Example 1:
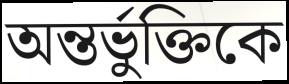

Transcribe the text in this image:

অন্তর্ভুক্তিকে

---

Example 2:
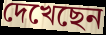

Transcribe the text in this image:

দেখেছেন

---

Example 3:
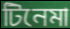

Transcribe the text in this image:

টিনেমা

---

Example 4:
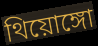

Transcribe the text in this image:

থিয়োঙ্গো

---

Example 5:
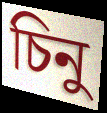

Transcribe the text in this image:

চিনু